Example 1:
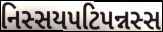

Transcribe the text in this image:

નિસ્સયપટિપન્નસ્સ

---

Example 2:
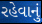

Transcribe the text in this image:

રહેવાનું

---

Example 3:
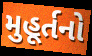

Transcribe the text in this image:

મુહૂર્તનો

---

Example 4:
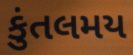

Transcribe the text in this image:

કુંતલમય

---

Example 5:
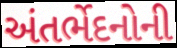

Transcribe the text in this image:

અંતર્ભેદનોની